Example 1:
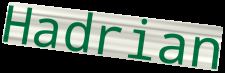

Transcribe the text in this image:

Hadrian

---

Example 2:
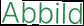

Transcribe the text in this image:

Abbild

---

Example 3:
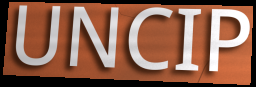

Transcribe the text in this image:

UNCIP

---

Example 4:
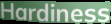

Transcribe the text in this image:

Hardiness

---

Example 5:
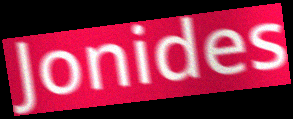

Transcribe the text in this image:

Jonides